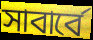
সাবার্বে